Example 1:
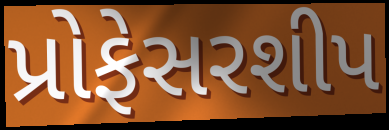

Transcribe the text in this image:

પ્રોફેસરશીપ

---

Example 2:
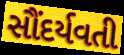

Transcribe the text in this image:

સૌંદર્યવતી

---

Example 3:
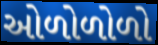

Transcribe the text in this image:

ઓળોળોળો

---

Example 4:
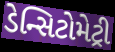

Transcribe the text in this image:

ડેન્સિટોમેટ્રી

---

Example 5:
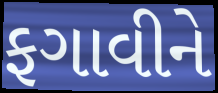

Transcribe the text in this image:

ફગાવીને